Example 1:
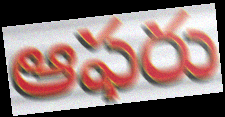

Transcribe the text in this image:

ఆఫరు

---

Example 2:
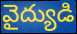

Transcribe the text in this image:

వైద్యుడి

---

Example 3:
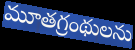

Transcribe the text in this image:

మూతగ్రంథులను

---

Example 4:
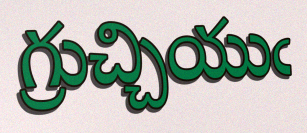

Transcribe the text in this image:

గ్రుచ్చియుఁ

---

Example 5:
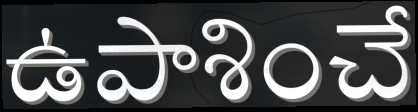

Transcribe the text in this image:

ఉపాశించే